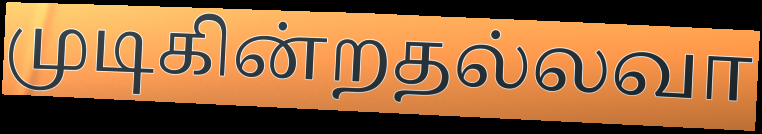
முடிகின்றதல்லவா